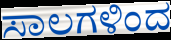
ಸಾಲಗಳಿಂದ